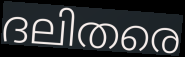
ദലിതരെ